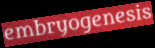
embryogenesis